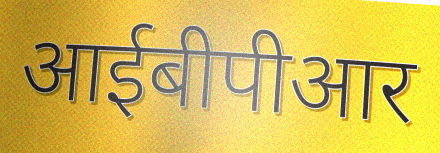
आईबीपीआर